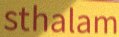
sthalam